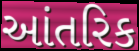
આંતરિક